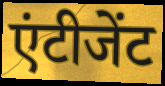
एंटीजेंट